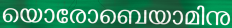
യൊരോബെയാമിനു